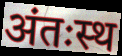
अंतःस्थ